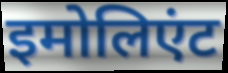
इमोलिएंट